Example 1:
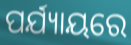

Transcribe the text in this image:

ପର୍ଯ୍ଯାୟରେ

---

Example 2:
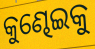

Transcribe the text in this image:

କୁଣ୍ଢେଇକୁ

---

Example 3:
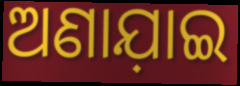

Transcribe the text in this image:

ଅଣାଯ଼ାଇ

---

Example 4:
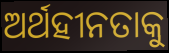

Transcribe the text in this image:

ଅର୍ଥହୀନତାକୁ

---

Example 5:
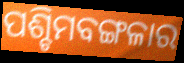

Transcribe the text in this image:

ପଶ୍ଚିମବଙ୍ଗଳାର